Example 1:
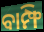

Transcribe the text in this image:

ବାମ୍ଫି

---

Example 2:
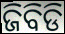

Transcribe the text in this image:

ଜିବିଡି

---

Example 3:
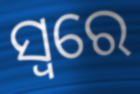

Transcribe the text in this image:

ସ୍ବରେ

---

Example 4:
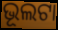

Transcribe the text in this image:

ଭୂଲଟା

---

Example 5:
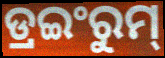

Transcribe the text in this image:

ଡ୍ରଇଂରୁମ୍